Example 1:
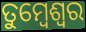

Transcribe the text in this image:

ତୁମ୍ବେଶ୍ଵର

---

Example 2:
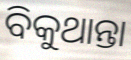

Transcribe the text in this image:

ବିକୁଥାନ୍ତା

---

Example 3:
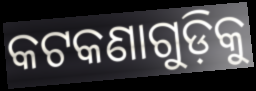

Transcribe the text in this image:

କଟକଣାଗୁଡ଼ିକୁ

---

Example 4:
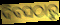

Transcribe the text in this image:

ଦିବସଠାରୁ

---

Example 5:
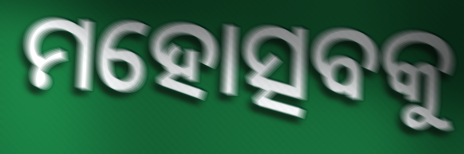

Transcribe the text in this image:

ମହୋତ୍ସବକୁ